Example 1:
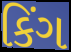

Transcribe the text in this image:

કિંગ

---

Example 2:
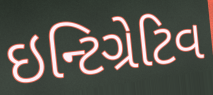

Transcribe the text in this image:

ઇન્ટિગ્રેટિવ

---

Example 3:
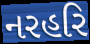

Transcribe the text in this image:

નરહરિ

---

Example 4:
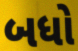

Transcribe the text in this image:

બધો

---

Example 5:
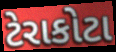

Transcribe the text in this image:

ટેરાકોટા